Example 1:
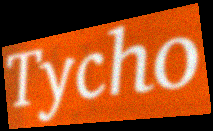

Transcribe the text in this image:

Tycho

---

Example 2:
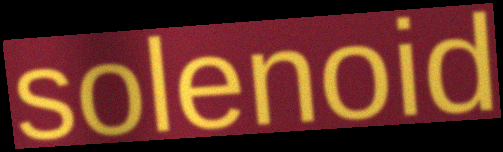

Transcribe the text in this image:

solenoid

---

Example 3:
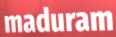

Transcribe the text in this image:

maduram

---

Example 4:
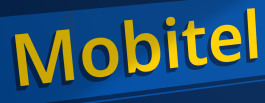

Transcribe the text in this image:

Mobitel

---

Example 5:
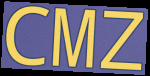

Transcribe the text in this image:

CMZ